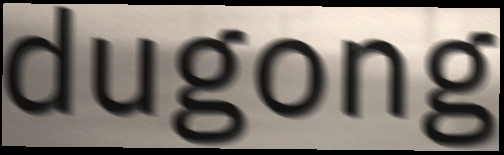
dugong